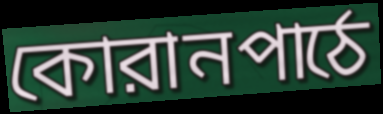
কোরানপাঠে